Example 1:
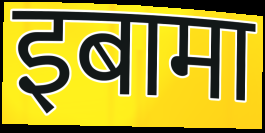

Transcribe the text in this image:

इबामा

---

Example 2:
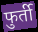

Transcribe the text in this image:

फुर्ती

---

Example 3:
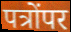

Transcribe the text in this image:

पत्रोंपर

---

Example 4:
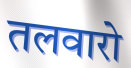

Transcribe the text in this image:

तलवारो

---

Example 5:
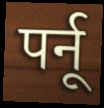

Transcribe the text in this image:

पर्नू